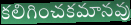
కలిగించకమానవు